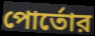
পোর্তোর